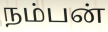
நம்பன்